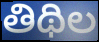
తిథిల